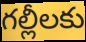
గల్లీలకు